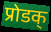
प्रोडक्